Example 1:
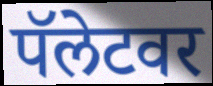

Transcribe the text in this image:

पॅलेटवर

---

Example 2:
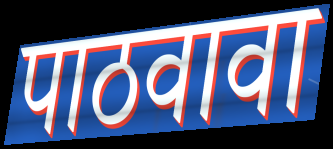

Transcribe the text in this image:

पाठवावा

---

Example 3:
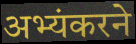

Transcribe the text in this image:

अभ्यंकरने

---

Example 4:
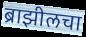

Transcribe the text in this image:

ब्राझीलचा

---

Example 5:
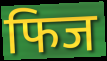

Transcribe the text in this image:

फिज